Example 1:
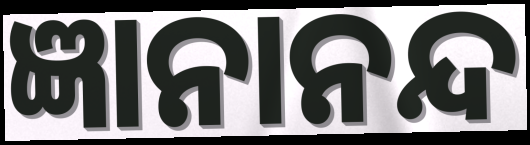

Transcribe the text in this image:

ଜ୍ଞାନାନନ୍ଦ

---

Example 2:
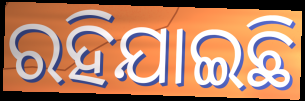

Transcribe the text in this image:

ରହିଯାଇଛି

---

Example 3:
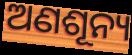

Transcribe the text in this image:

ଅଣଶୂନ୍ୟ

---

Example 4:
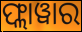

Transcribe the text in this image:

ଫ୍ଲାୱାର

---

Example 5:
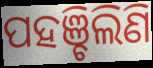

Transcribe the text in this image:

ପହଞ୍ଚିଲିଣି